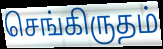
செங்கிருதம்